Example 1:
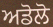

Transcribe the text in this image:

ਅਡੋਲੋ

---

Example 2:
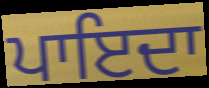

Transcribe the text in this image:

ਪਾਇਦਾ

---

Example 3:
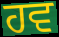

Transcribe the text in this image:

ਹਵ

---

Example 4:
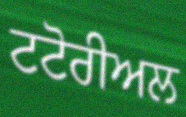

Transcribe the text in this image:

ਟਟੋਰੀਅਲ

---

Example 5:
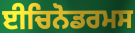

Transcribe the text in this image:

ਈਚਿਨੋਡਰਮਸ